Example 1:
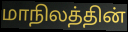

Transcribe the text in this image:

மாநிலத்தின்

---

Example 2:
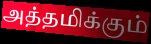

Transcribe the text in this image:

அத்தமிக்கும்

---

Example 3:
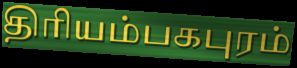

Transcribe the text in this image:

திரியம்பகபுரம்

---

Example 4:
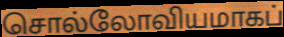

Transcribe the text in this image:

சொல்லோவியமாகப்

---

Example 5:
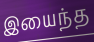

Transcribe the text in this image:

இயைந்த